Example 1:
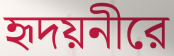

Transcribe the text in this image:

হৃদয়নীরে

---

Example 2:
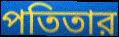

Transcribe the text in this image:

পতিতার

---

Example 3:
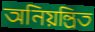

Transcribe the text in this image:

অনিয়ন্ত্রিত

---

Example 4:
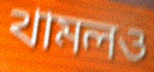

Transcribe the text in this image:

থামলও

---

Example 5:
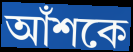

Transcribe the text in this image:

আঁশকে